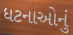
ધટનાઓનું